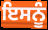
ਇਸਨੂੰ